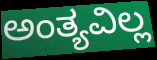
ಅಂತ್ಯವಿಲ್ಲ